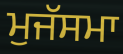
ਮੁਜੱਸਮਾ